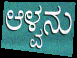
ಆಳ್ವನು